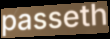
passeth